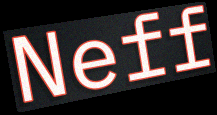
Neff